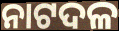
ନାଟଦଳ